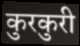
कुरकुरी